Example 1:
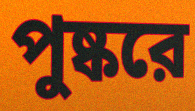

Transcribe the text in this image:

পুষ্করে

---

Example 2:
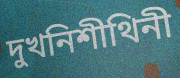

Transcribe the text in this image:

দুখনিশীথিনী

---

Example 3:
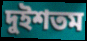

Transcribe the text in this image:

দুইশতম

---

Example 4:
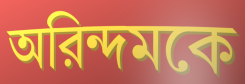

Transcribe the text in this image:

অরিন্দমকে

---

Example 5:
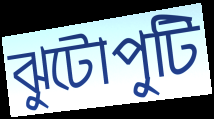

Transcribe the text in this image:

ঝুটোপুটি